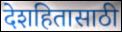
देशहितासाठी